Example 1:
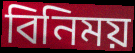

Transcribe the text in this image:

বিনিময়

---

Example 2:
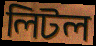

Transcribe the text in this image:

লিটল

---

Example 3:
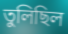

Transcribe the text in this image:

তুলিছিল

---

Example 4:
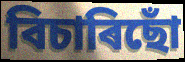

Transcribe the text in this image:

বিচাৰিছোঁ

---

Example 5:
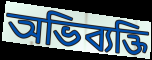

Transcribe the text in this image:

অভিব্যক্তি